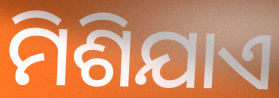
ମିଶିଯାଏ